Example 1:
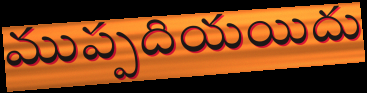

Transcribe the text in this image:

ముప్పదియయిదు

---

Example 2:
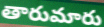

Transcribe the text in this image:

తారుమారు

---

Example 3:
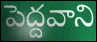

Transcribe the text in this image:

పెద్దవాని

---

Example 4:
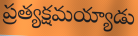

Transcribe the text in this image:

ప్రత్యక్షమయ్యాడు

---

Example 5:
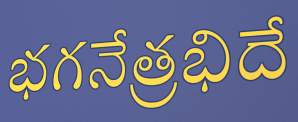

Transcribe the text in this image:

భగనేత్రభిదే